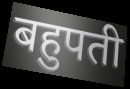
बहुपती